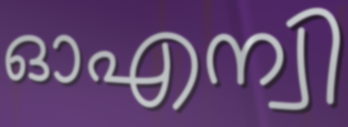
ഓഎന്വി